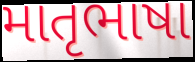
માતૃભાષા